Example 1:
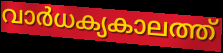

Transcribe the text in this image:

വാർധക്യകാലത്ത്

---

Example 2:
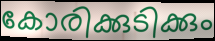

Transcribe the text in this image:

കോരിക്കുടിക്കും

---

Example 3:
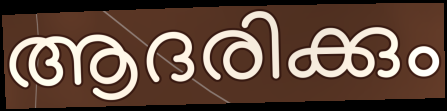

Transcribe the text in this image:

ആദരിക്കും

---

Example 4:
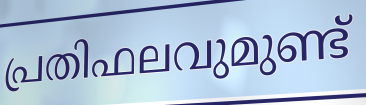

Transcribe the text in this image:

പ്രതിഫലവുമുണ്ട്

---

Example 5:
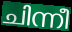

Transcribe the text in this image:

ചിന്നീ